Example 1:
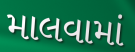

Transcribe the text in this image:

માલવામાં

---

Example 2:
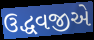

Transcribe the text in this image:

ઉદ્ધવજીએ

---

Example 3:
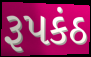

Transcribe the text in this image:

રૂપકંઠ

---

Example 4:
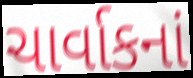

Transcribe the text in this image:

ચાર્વાકનાં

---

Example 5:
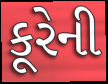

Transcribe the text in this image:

કૂરેની